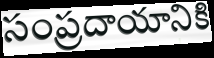
సంప్రదాయానికి